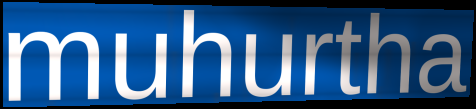
muhurtha